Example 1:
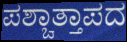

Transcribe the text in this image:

ಪಶ್ಚಾತ್ತಾಪದ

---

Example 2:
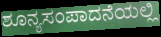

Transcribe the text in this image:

ಶೂನ್ಯಸಂಪಾದನೆಯಲ್ಲಿ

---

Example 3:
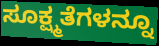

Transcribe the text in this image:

ಸೂಕ್ಷ್ಮತೆಗಳನ್ನೂ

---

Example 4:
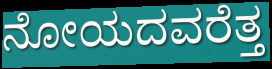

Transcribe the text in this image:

ನೋಯದವರೆತ್ತ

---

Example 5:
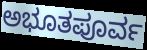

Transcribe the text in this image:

ಅಭೂತಪೂರ್ವ